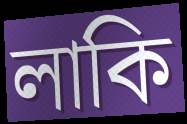
লাকি